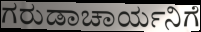
ಗರುಡಾಚಾರ್ಯನಿಗೆ